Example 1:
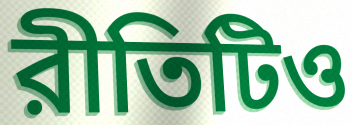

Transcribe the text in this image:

রীতিটিও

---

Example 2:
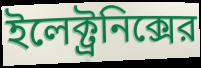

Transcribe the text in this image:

ইলেক্ট্রনিক্সের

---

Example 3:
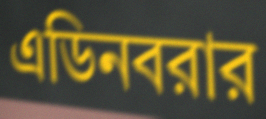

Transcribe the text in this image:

এডিনবরার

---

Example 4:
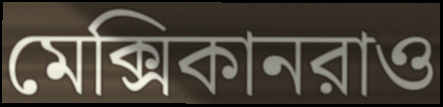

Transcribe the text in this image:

মেক্সিকানরাও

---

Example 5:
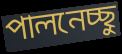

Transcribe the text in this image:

পালনেচ্ছু